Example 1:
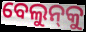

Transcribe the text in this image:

ବେଲୁନ୍‌କୁ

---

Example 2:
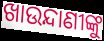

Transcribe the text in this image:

ଖାଉନ୍ଦାଣୀଙ୍କୁ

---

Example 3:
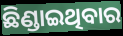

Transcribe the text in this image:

ଛିଣ୍ଡାଇଥିବାର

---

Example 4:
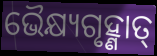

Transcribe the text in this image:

ଭୈକ୍ଷ୍ୟଗୃହ୍ଣାତ୍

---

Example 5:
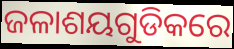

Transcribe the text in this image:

ଜଳାଶୟଗୁଡିକରେ